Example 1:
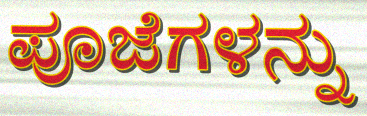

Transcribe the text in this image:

ಪೂಜೆಗಳನ್ನು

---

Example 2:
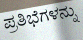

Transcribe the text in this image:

ಪ್ರತಿಭೆಗಳನ್ನು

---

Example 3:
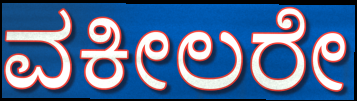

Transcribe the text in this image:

ವಕೀಲರೇ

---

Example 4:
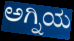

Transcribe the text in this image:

ಅಗ್ನಿಯ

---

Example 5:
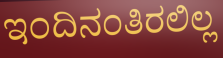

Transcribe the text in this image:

ಇಂದಿನಂತಿರಲಿಲ್ಲ